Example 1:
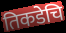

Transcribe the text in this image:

तिकडेचि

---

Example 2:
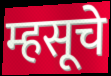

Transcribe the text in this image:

म्हसूचे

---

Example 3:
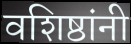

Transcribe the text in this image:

वशिष्ठांनी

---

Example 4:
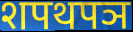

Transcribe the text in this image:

शपथपञ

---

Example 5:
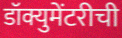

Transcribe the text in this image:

डॉक्युमेंटरीची